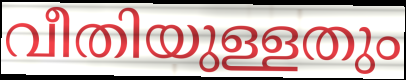
വീതിയുള്ളതും